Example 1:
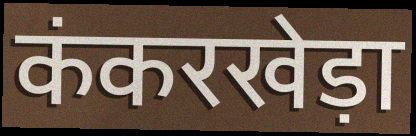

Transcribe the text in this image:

कंकरखेड़ा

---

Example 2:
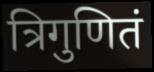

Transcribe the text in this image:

त्रिगुणितं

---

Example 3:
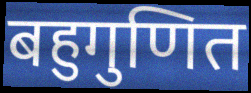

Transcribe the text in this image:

बहुगुणित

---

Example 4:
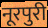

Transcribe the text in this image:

नूरपुरी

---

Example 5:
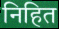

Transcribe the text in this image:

निहित